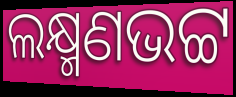
ଲକ୍ଷ୍ମଣଭଟ୍ଟ